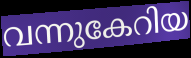
വന്നുകേറിയ